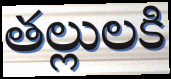
తల్లులకి